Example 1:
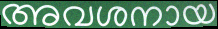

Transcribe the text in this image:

അവശനായ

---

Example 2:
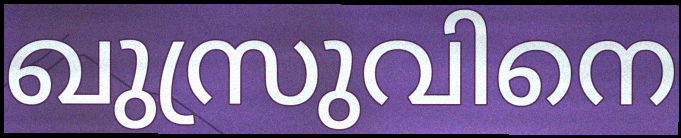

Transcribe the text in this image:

ഖുസ്രുവിനെ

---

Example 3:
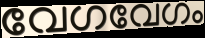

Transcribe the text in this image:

വേഗവേഗം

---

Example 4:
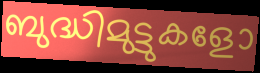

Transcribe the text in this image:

ബുദ്ധിമുട്ടുകളോ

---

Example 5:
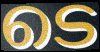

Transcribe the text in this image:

ടെ